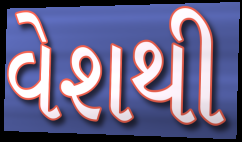
વેશથી